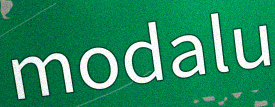
modalu